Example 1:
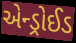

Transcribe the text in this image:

એન્ડ્રોઈડ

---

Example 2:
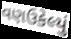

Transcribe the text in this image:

વણઉકેલ્યું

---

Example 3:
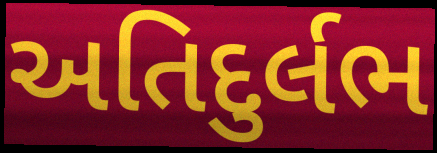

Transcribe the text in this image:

અતિદુર્લભ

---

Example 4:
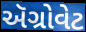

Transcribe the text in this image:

ઍગ્રોવેટ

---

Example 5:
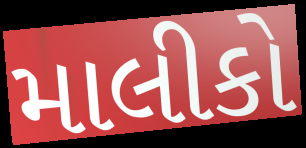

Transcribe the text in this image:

માલીકો